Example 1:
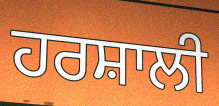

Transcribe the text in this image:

ਹਰਸ਼ਾਲੀ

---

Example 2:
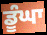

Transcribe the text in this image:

ਡੂੰਘਾ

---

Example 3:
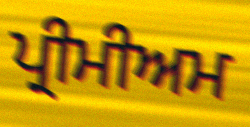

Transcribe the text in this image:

ਪ੍ਰੀਮੀਅਮ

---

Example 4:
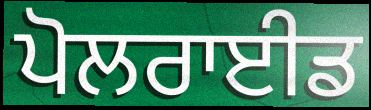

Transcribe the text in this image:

ਪੋਲਰਾਈਡ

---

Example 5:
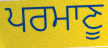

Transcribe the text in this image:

ਪਰਮਾਣੂ